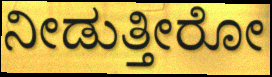
ನೀಡುತ್ತೀರೋ